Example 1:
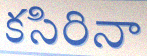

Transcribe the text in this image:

కసిరినా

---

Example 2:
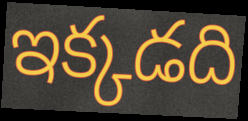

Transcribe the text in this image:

ఇక్కడది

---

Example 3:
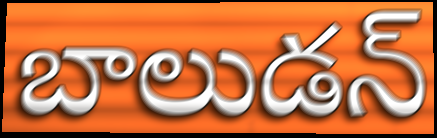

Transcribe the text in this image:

బాలుడన్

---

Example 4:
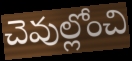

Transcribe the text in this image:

చెవుల్లోంచి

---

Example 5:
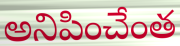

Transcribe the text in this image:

అనిపించేంత